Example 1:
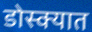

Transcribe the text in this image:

डोस्क्यात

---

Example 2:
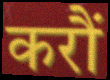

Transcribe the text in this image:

करौं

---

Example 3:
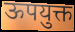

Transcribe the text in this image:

ऊपयुक्त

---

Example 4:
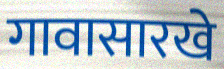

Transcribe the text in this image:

गावासारखे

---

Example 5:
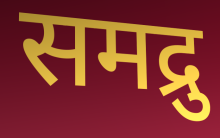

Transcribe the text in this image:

समद्रु